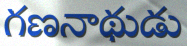
గణనాథుడు